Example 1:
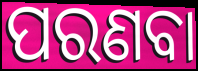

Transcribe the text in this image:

ପରଣବା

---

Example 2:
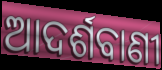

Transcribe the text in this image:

ଆଦର୍ଶବାଣୀ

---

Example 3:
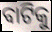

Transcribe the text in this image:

ବାଟିକୁ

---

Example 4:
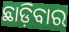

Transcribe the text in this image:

ଛାଡ଼ିବାର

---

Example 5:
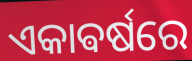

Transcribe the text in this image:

ଏକାଵର୍ଷରେ